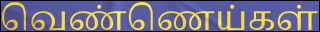
வெண்ணெய்கள்